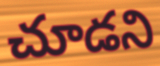
చూడని